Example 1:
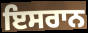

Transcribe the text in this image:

ਇਸਰਾਨ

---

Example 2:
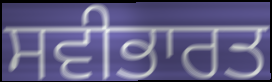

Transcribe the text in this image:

ਸਵੀਭਾਰਤ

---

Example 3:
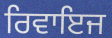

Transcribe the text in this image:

ਰਿਵਾਇਜ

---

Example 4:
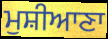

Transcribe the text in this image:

ਮੁਸ਼ੀਆਣਾ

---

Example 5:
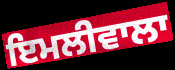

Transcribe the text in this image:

ਇਮਲੀਵਾਲਾ